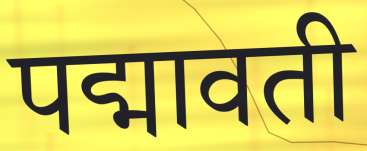
पद्मावती